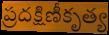
ప్రదక్షిణీకృత్య